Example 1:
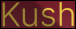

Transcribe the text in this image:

Kush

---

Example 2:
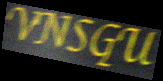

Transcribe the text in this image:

VNSGU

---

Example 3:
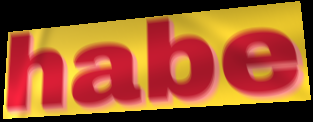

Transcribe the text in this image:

habe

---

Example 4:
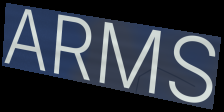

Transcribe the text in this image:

ARMS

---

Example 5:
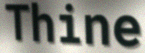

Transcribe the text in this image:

Thine